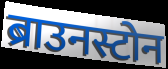
ब्राउनस्टोन